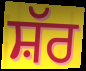
ਸ਼ੱਰ